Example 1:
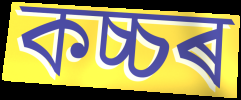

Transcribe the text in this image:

কচ্চৰ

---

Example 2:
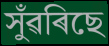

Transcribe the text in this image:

সুঁৱৰিছে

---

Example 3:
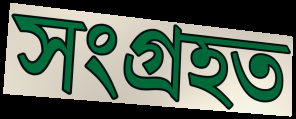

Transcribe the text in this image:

সংগ্ৰহত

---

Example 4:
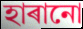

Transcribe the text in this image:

হাৰানো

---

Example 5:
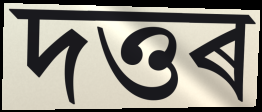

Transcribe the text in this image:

দত্তৰ